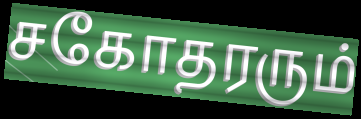
சகோதரரும்